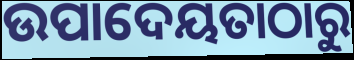
ଉପାଦେୟତାଠାରୁ